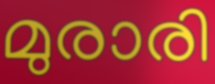
മുരാരി